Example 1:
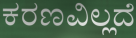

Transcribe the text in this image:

ಕರಣವಿಲ್ಲದೆ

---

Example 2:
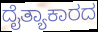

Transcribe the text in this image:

ದೈತ್ಯಾಕಾರದ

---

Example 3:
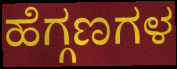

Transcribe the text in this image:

ಹೆಗ್ಗಣಗಳ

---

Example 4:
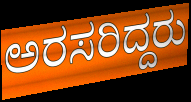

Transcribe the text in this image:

ಅರಸರಿದ್ದರು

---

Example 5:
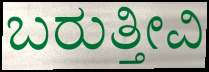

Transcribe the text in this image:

ಬರುತ್ತೀವಿ